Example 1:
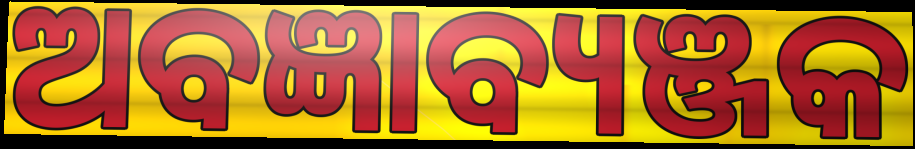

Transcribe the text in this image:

ଅବଜ୍ଞାବ୍ୟଞ୍ଜକ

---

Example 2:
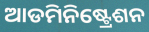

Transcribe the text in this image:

ଆଡମିନିଷ୍ଟ୍ରେଶନ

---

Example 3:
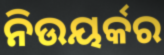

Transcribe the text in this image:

ନିଉୟର୍କର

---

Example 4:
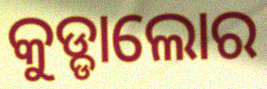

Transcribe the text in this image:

କୁଡ୍ଡାଲୋର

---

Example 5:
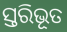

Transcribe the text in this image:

ସ୍ତରିଭୂତ